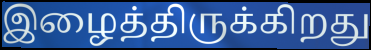
இழைத்திருக்கிறது